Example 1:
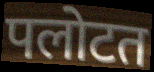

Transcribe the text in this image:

पलोटत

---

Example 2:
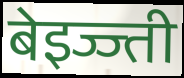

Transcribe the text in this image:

बेइज्ज्ती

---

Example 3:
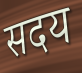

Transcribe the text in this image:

सदय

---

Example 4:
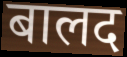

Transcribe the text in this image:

बालद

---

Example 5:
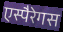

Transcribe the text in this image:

एस्पैरेगस